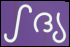
ഽദ്യ